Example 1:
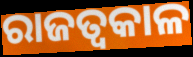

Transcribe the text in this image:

ରାଜତ୍ଵକାଳ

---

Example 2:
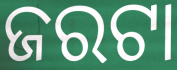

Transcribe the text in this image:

ଜରଟା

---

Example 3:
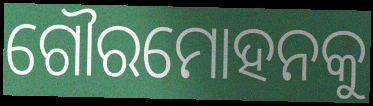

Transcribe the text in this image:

ଗୌରମୋହନକୁ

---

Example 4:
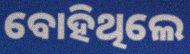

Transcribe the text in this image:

ବୋହିଥିଲେ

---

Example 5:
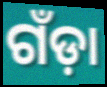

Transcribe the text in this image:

ଗଁଡ଼ା